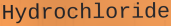
Hydrochloride